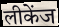
लीकेंज